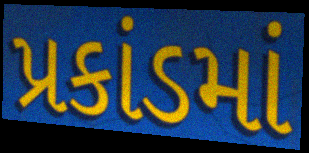
પ્રકાંડમાં